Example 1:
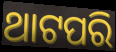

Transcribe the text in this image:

ଥାଟପରି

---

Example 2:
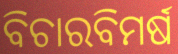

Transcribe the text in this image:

ବିଚାରବିମର୍ଷ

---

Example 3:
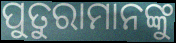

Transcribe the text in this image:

ପୁତୁରାମାନଙ୍କୁ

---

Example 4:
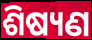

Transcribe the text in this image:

ଶିଷ୍ୟଣ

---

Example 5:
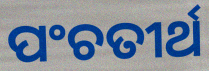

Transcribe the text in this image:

ପଂଚତୀର୍ଥ